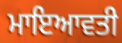
ਮਾਇਆਵਤੀ